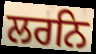
ਲਰਨਿ